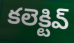
కలెక్టివ్